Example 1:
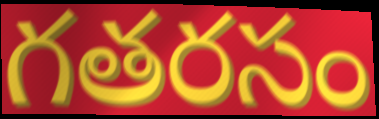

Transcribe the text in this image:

గతరసం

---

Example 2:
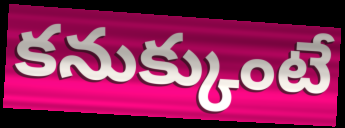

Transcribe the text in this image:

కనుక్కుంటే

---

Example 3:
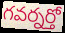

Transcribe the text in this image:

గవర్నర్తో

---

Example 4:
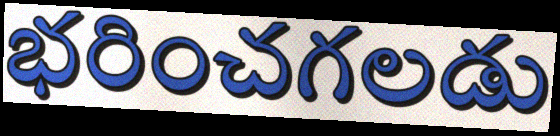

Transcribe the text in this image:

భరించగలడు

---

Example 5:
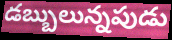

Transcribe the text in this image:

డబ్బులున్నపుడు